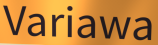
Variawa